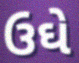
ઉઘે